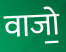
वाजो॒